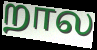
றால